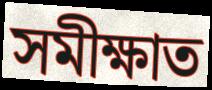
সমীক্ষাত